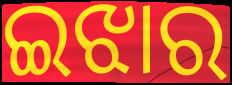
ଇଝାର